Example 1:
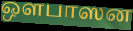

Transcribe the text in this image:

ஒளபாஸன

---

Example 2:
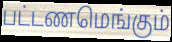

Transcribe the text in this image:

பட்டணமெங்கும்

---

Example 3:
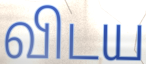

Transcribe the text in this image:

விடய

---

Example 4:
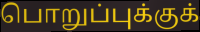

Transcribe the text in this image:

பொறுப்புக்குக்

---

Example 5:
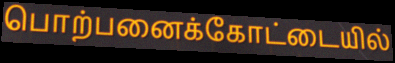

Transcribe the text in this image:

பொற்பனைக்கோட்டையில்